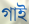
গাই